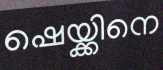
ഷെയ്ക്കിനെ